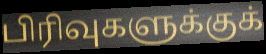
பிரிவுகளுக்குக்